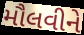
મૌલવીને